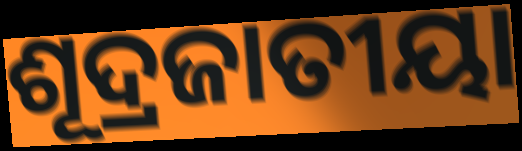
ଶୂଦ୍ରଜାତୀୟା